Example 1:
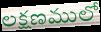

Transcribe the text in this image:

లక్షణములో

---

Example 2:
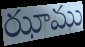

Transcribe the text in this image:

ఝాము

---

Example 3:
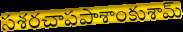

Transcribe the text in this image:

సశరచాపపాశాంకుశామ్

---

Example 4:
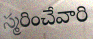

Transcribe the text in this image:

స్మరించేవారి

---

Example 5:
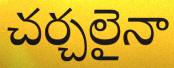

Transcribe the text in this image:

చర్చలైనా